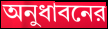
অনুধাবনের